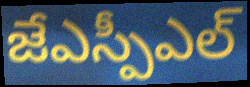
జేఎస్పీఎల్